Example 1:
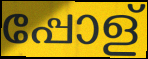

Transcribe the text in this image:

പ്പോള്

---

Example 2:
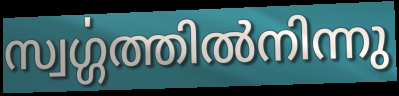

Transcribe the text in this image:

സ്വൎഗ്ഗത്തിൽനിന്നു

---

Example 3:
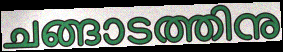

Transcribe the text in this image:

ചങ്ങാടത്തിനു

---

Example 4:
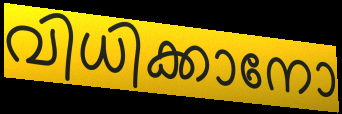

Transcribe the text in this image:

വിധിക്കാനോ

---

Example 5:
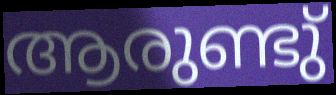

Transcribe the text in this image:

ആരുണ്ടു്